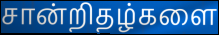
சான்றிதழ்களை